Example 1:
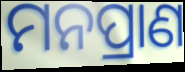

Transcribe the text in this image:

ମନପ୍ରାଣ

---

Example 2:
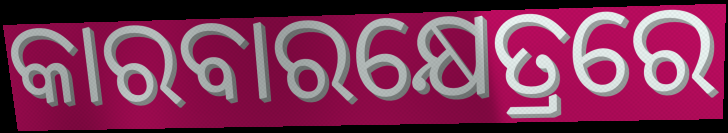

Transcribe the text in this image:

କାରବାରକ୍ଷେତ୍ରରେ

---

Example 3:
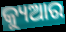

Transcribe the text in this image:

କ୍ୟୁଆର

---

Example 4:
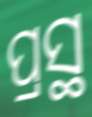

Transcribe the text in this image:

ପ୍ରସ୍ଥ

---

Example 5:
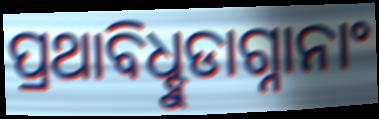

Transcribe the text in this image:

ପ୍ରଥାବିଧ୍ହୁଡାଗ୍ନାନାଂ